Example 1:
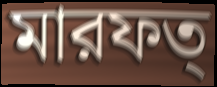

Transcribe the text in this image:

মারফত্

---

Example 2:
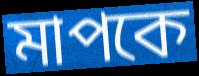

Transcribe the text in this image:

মাপকে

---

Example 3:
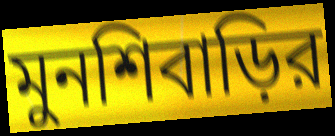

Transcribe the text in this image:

মুনশিবাড়ির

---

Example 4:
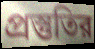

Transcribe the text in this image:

প্রস্তুতির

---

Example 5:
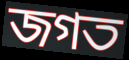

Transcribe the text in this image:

জগত